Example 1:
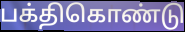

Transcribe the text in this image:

பக்திகொண்டு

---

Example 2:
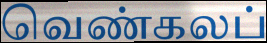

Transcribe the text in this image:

வெண்கலப்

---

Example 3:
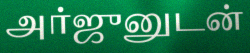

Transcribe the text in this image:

அர்ஜுனுடன்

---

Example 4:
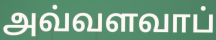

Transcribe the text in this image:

அவ்வளவாப்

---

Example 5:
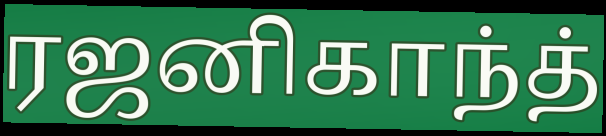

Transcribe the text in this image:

ரஜனிகாந்த்